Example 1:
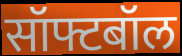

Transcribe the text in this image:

सॉफ्टबॉल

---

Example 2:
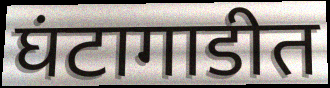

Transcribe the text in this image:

घंटागाडीत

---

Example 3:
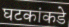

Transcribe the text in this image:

घटकांकडे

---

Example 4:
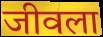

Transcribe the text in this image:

जीवला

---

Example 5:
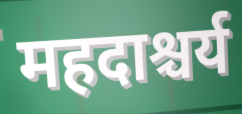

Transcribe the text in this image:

महदाश्चर्य